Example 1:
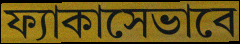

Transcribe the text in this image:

ফ্যাকাসেভাবে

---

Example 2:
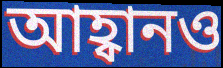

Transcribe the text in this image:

আহ্বানও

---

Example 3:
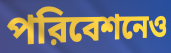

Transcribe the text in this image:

পরিবেশনেও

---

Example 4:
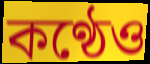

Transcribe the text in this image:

কণ্ঠেও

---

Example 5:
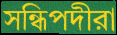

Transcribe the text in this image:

সন্ধিপদীরা